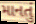
માનતું